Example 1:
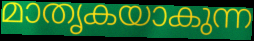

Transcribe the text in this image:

മാതൃകയാകുന്ന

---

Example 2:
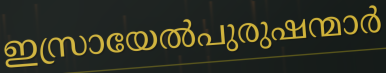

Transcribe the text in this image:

ഇസ്രായേൽപുരുഷന്മാർ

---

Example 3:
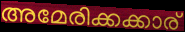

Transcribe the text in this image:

അമേരിക്കക്കാര്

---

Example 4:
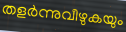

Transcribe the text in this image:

തളർന്നുവീഴുകയും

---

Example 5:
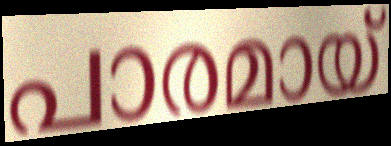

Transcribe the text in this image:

പാരമായ്